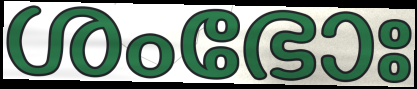
ശംഭോഃ